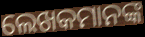
ଲେଖକମାନଙ୍କ